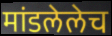
मांडलेलेच